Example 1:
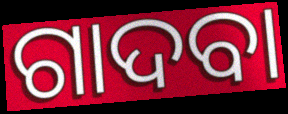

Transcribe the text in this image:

ଗାଦବା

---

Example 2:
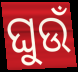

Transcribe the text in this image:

ଘୁଉଁ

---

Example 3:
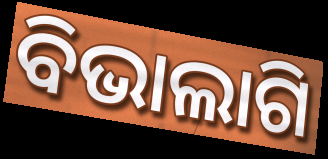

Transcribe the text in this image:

ବିଭାଲାଗି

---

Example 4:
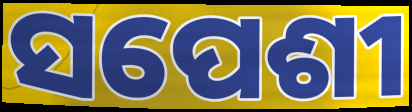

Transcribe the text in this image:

ସପେଶୀ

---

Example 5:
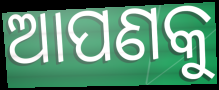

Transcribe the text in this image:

ଆପଣକୁ